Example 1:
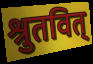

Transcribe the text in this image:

श्रुतवित्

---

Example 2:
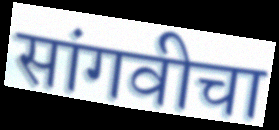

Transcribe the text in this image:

सांगवीचा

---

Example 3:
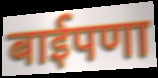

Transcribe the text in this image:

बाईपणा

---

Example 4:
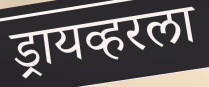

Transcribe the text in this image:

ड्रायव्हरला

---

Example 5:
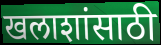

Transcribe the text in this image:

खलाशांसाठी